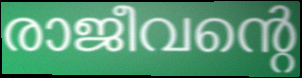
രാജീവന്റെ